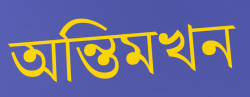
অন্তিমখন